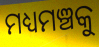
ମଧ୍ୟମଞ୍ଚକୁ